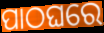
ପାଠଘରେ